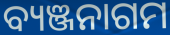
ବ୍ୟଞ୍ଜନାଗମ